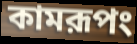
কামরূপং